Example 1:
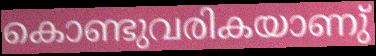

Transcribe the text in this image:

കൊണ്ടുവരികയാണു്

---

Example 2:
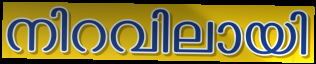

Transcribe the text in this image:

നിറവിലായി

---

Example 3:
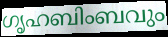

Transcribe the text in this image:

ഗൃഹബിംബവും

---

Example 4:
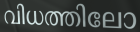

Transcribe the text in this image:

വിധത്തിലോ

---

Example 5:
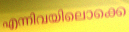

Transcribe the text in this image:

എന്നിവയിലൊക്കെ